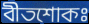
বীতশোকঃ